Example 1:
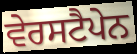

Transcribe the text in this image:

ਵੇਰਸਟੈਪੇਨ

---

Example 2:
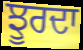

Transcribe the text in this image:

ਝੂਰਦਾ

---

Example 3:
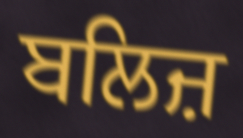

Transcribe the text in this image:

ਬਲਿਜ਼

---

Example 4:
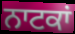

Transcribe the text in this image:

ਨਾਟਕਾਂ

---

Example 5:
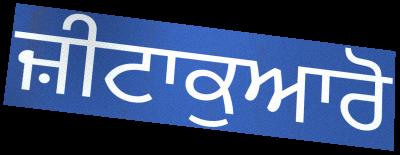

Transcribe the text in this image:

ਜ਼ੀਟਾਕੁਆਰੋ